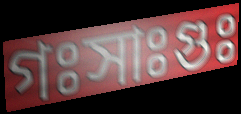
গঃসাঃগুঃ